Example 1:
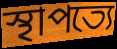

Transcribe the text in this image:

স্থাপত্যে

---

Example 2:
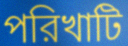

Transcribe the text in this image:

পরিখাটি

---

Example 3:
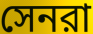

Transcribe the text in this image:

সেনরা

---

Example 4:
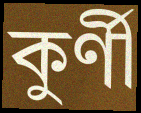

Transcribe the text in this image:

কুর্ণী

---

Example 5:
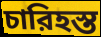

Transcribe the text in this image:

চারিহস্ত